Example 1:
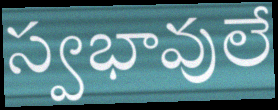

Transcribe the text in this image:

స్వభావులే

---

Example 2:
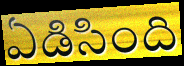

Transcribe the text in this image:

ఏడిసింది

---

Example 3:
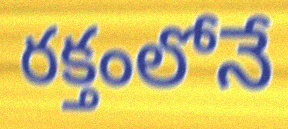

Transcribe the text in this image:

రక్తంలోనే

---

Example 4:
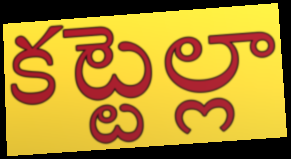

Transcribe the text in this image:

కట్టెల్లా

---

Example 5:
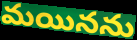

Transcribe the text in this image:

మయినను